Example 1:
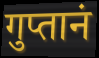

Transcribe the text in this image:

गुप्तानं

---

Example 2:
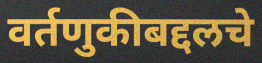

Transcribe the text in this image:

वर्तणुकीबद्दलचे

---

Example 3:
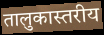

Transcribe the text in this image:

तालुकास्तरीय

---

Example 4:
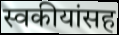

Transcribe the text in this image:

स्वकीयांसह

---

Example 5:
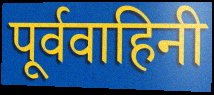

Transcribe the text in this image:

पूर्ववाहिनी